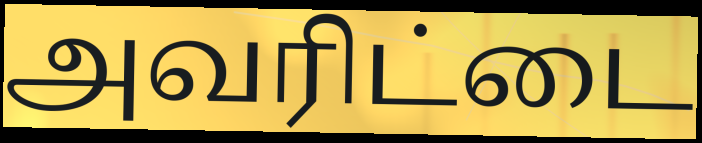
அவரிட்டை